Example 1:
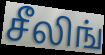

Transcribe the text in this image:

சீலிங்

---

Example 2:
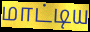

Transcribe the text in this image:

மாட்டிய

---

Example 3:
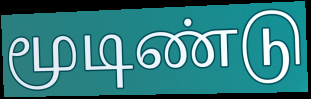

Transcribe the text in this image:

மூடிண்டு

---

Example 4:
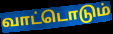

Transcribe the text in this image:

வாட்டொடும்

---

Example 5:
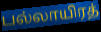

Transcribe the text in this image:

பல்லாயிரத்